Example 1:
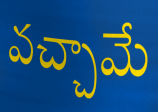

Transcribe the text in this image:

వచ్చామే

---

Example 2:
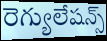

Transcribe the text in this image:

రెగ్యులేషన్స్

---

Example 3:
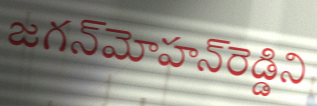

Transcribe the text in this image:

జగన్‌మోహన్‌రెడ్డిని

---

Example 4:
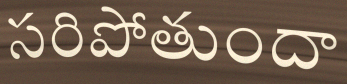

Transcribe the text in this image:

సరిపోతుందా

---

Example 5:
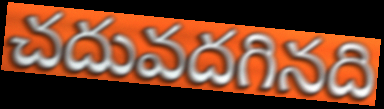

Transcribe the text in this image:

చదువదగినది